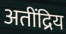
अतींद्रिय